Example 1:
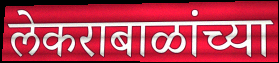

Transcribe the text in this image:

लेकराबाळांच्या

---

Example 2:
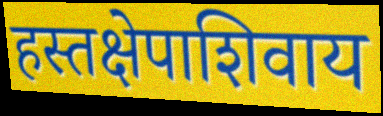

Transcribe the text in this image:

हस्तक्षेपाशिवाय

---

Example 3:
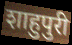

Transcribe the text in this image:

शाहुपुरी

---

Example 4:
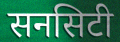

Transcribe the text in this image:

सनसिटी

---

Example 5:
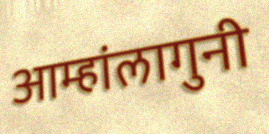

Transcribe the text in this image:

आम्हांलागुनी